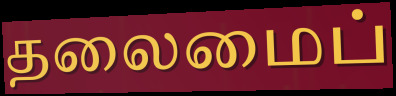
தலைமைப்